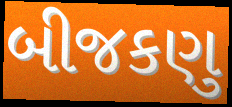
બીજકણુ